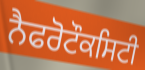
ਨੈਫਰੋਟੌਕਸਿਟੀ